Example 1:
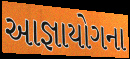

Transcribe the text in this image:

આજ્ઞાયોગના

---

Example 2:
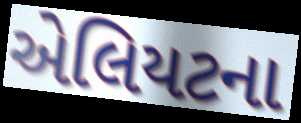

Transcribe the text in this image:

એલિયટના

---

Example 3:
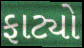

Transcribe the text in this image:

ફાટ્યો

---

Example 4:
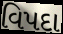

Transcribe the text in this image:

વિપદા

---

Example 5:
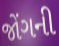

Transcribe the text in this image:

જોંગની